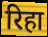
रिहा